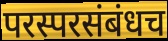
परस्परसंबंधच